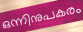
ഒന്നിനുപകരം